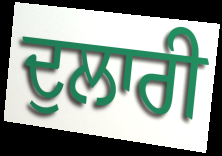
ਦੁਲਾਰੀ